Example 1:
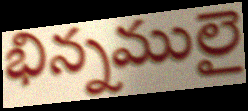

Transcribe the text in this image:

భిన్నములై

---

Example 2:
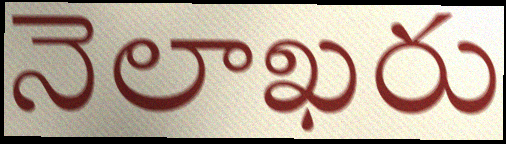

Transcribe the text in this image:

నెలాఖరు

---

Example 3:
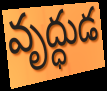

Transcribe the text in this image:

వృద్ధుడ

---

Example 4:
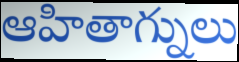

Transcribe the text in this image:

ఆహితాగ్నులు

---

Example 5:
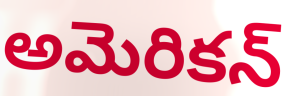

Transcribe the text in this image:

అమెరికన్